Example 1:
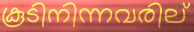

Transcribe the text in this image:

കൂടിനിന്നവരില്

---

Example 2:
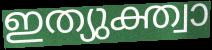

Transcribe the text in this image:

ഇത്യുക്ത്വാ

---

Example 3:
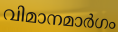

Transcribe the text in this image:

വിമാനമാർഗം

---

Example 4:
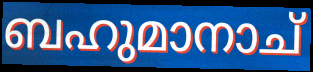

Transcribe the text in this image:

ബഹുമാനാച്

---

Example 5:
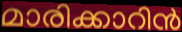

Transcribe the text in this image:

മാരിക്കാറിൻ